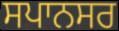
ਸਪਾਨਸਰ